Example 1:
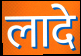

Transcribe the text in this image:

लादे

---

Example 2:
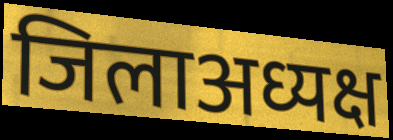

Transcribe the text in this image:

जिलाअध्यक्ष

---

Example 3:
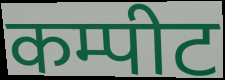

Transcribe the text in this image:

कम्पीट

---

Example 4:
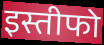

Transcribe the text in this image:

इस्तीफो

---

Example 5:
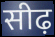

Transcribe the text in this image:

सीढ़